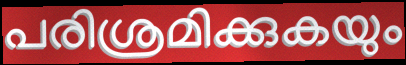
പരിശ്രമിക്കുകയും